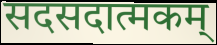
सदसदात्मकम्